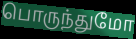
பொருந்துமோ